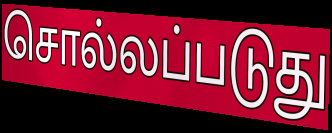
சொல்லப்படுது